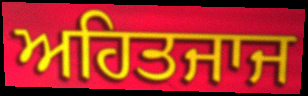
ਅਹਿਤਜਾਜ